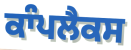
ਕਾੰਪਲੈਕਸ